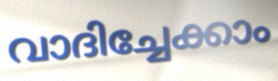
വാദിച്ചേക്കാം